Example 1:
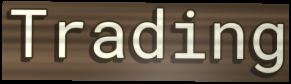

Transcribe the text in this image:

Trading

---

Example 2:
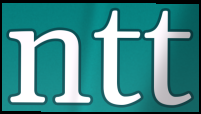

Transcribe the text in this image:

ntt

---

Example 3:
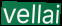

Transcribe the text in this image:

vellai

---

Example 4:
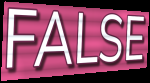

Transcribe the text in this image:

FALSE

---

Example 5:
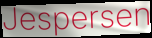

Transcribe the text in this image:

Jespersen